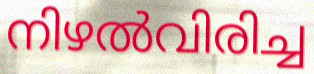
നിഴൽവിരിച്ച